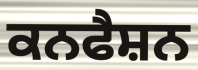
ਕਨਫੈਸ਼ਨ